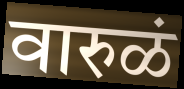
वारुळं